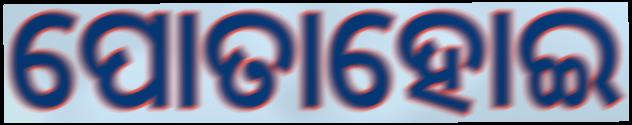
ପୋତାହୋଇ